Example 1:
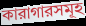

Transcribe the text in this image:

কারাগারসমূহ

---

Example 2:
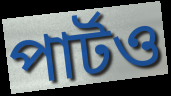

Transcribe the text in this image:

পার্টও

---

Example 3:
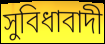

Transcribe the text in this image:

সুবিধাবাদী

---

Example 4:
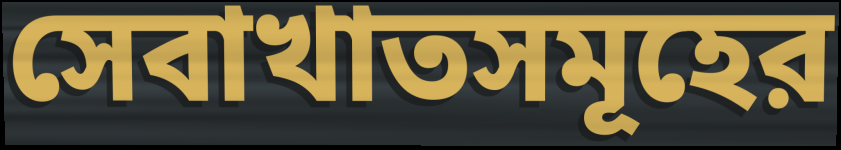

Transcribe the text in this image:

সেবাখাতসমূহের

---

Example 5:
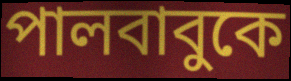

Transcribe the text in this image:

পালবাবুকে